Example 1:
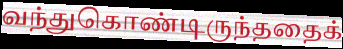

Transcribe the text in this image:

வந்துகொண்டிருந்ததைக்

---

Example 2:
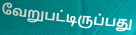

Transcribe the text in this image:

வேறுபட்டிருப்பது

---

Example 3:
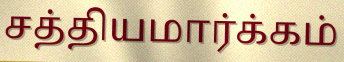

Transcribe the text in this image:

சத்தியமார்க்கம்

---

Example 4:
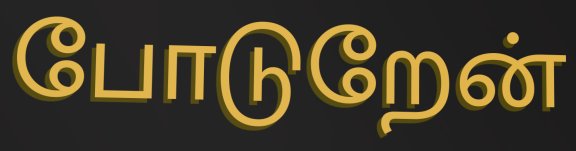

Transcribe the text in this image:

போடுறேன்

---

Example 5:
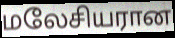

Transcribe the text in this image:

மலேசியரான